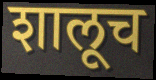
शालूच